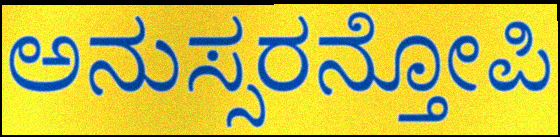
ಅನುಸ್ಸರನ್ತೋಪಿ